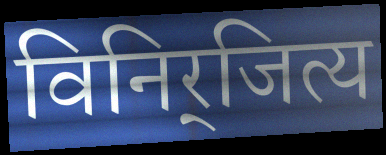
विनिर्जित्य